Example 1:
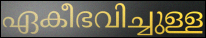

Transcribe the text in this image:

ഏകീഭവിച്ചുള്ള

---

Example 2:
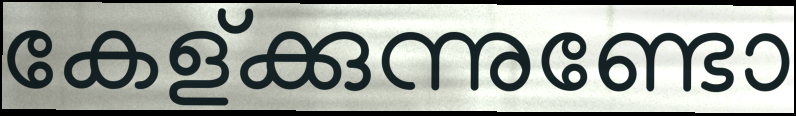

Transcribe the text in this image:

കേള്ക്കുന്നുണ്ടോ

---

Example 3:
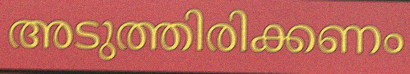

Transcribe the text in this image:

അടുത്തിരിക്കണം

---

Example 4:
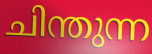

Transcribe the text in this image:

ചിന്തുന്ന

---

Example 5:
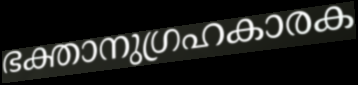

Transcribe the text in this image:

ഭക്താനുഗ്രഹകാരക